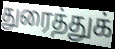
துரைத்துக்